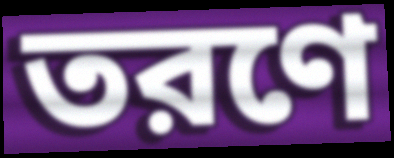
তরণে